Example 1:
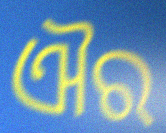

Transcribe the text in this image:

ଐର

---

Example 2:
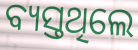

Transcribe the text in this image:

ବ୍ୟସ୍ତଥିଲେ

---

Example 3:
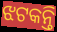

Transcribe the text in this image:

ଝଟକନ୍ତି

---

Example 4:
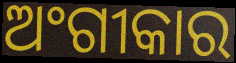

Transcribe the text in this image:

ଅଂଗୀକାର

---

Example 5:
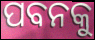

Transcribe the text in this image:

ପବନକୁ